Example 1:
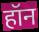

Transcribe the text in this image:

हॉन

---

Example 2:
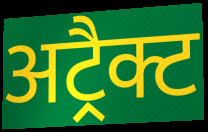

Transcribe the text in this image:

अट्रैक्ट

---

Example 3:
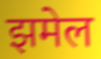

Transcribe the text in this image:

झमेल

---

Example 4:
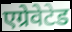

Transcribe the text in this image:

एग्रेवेटेड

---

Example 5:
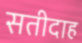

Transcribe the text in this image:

सतीदाह